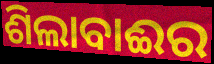
ଶିଲାବାଈର